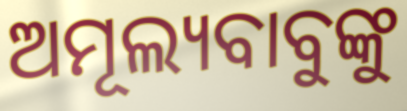
ଅମୂଲ୍ୟବାବୁଙ୍କୁ